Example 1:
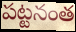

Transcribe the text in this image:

పట్టనంత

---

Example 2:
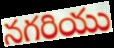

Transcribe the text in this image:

నగరియు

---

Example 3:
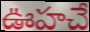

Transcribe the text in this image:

ఊహచే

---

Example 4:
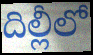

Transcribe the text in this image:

దిల్లీలో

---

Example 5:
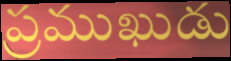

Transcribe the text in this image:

ప్రముఖుడు